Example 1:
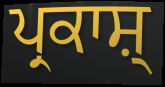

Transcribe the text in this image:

ਪ੍ਰਕਾਸ਼੍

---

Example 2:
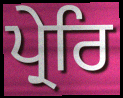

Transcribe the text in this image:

ਪ੍ਰੇਰਿ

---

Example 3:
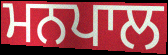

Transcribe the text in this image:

ਮਨਪਾਲ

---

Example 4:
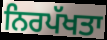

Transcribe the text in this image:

ਨਿਰਪੱਖਤਾ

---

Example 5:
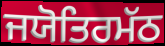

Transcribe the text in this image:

ਜਯੋਤਿਰਮੱਠ